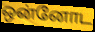
ஒன்னோட